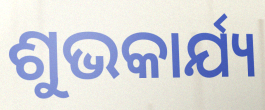
ଶୁଭକାର୍ଯ୍ୟ